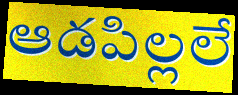
ఆడపిల్లలే